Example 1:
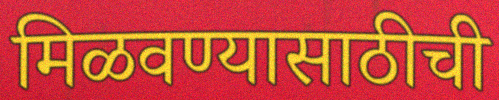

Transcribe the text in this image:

मिळवण्यासाठीची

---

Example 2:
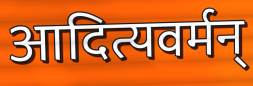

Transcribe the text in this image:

आदित्यवर्मन्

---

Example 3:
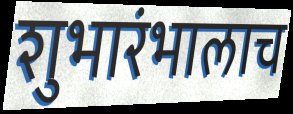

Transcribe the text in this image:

शुभारंभालाच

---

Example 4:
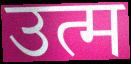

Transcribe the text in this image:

उत्म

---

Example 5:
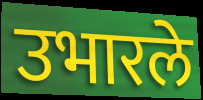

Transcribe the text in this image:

उभारले